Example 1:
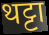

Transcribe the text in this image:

थट्टा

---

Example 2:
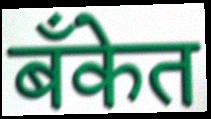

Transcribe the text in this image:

बॅंकेत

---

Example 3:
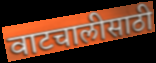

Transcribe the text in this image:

वाटचालीसाठी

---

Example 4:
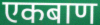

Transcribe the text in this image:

एकबाण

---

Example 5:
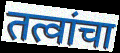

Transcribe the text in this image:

तत्वांचा